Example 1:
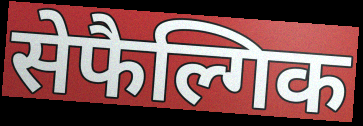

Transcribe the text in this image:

सेफैल्गिक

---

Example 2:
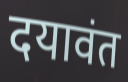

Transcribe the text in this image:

दयावंत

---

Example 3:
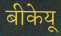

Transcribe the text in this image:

बीकेयू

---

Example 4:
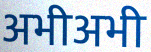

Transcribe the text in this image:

अभीअभी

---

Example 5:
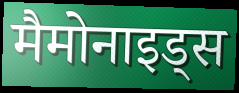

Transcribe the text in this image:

मैमोनाइड्स